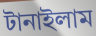
টানাইলাম